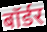
बॉर्डर